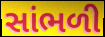
સાંભળી